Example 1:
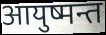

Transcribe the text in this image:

आयुष्मन्त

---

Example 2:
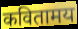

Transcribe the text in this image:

कवितामय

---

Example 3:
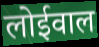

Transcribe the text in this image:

लोईवाल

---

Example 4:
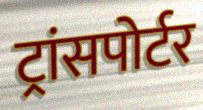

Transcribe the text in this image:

ट्रांसपोर्टर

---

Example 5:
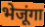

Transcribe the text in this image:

भेजूंगा